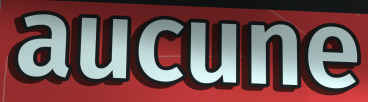
aucune